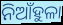
ନିଆଁହୁଳା